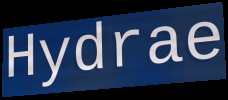
Hydrae